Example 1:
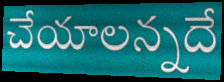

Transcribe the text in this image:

చేయాలన్నదే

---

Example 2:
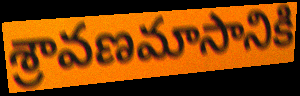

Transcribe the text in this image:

శ్రావణమాసానికి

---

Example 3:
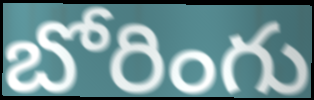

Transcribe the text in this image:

బోరింగు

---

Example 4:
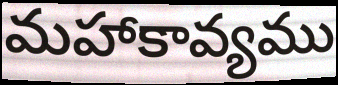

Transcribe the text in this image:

మహాకావ్యము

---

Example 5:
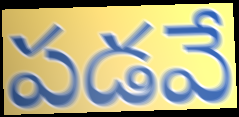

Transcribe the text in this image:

పడవే